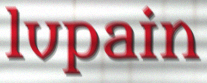
lupain